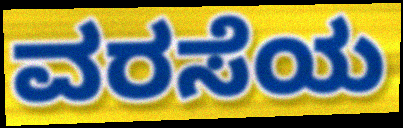
ವರಸೆಯ